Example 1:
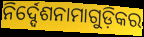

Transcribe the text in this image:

ନିର୍ଦ୍ଦେଶନାମାଗୁଡ଼ିକର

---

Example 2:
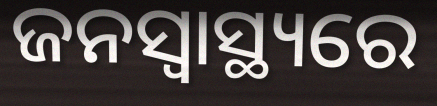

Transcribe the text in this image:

ଜନସ୍ବାସ୍ଥ୍ୟରେ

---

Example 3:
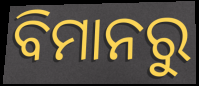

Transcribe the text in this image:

ବିମାନରୁ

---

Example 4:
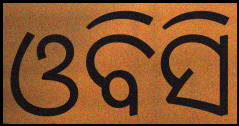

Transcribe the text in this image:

ଓବିସି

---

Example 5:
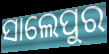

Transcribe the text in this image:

ସାଲେପୁର